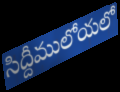
సిద్దీములోయలో